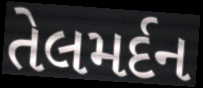
તેલમર્દન